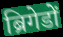
ब्रिगेडों